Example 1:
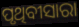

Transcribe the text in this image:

ପୃଥିବୀସାରା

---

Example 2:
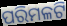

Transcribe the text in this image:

ପରିମଳଟି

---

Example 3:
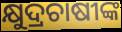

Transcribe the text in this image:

କ୍ଷୁଦ୍ରଚାଷୀଙ୍କ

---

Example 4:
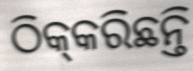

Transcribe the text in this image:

ଠିକ୍‌କରିଛନ୍ତି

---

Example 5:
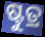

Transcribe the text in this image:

ଷ୍ଟୁତ୍ର